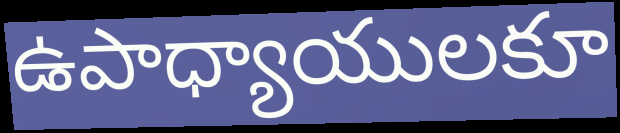
ఉపాధ్యాయులకూ